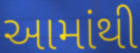
આમાંથી